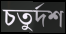
চতুৰ্দশ